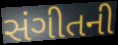
સંગીતની